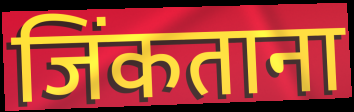
जिंकताना